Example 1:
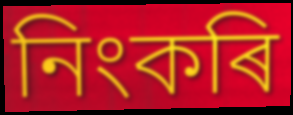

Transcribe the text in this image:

নিংকৰি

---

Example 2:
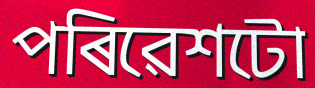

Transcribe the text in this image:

পৰিৱেশটো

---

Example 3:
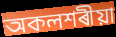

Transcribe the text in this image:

অকলশৰীয়া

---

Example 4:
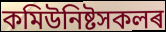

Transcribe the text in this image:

কমিউনিষ্টসকলৰ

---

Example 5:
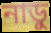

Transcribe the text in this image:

নাডু